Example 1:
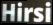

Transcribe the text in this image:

Hirsi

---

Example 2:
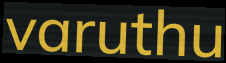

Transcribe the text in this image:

varuthu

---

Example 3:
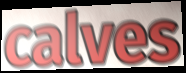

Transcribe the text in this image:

calves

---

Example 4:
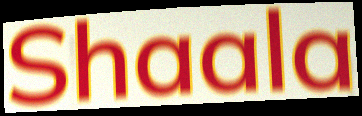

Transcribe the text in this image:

Shaala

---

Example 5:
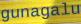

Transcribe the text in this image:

gunagalu